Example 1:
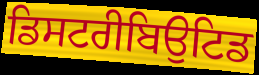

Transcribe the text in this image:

ਡਿਸਟਰੀਬਿਉਟਿਡ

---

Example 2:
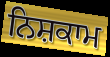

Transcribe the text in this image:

ਨਿਸ਼ਕਾਮ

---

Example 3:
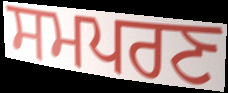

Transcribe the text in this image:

ਸਮਪਰਣ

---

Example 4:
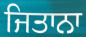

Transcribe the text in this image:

ਜਿਤਾਨਾ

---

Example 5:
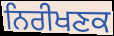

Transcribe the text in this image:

ਨਿਰੀਖਣਕ